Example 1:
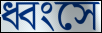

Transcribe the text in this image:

ধ্বংসে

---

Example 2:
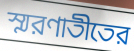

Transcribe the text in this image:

স্মরণাতীতের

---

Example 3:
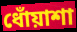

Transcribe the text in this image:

ধোঁয়াশা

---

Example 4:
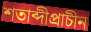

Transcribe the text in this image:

শতাব্দীপ্রাচীন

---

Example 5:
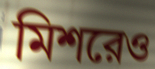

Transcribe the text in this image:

মিশরেও